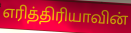
எரித்திரியாவின்